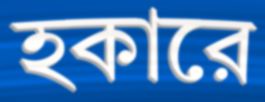
হকারে